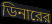
ডিনারের